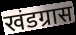
खंडग्रास